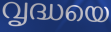
വൃദ്ധയെ